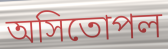
অসিতোপল